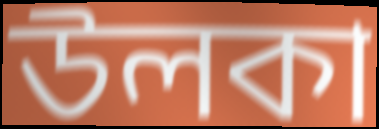
উলকা